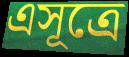
এসূত্রে